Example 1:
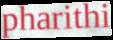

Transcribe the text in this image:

pharithi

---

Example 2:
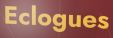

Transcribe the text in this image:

Eclogues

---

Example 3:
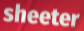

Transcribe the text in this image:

sheeter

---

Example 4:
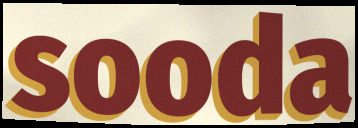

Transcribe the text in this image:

sooda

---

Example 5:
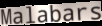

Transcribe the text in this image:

Malabars